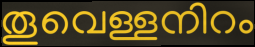
തൂവെള്ളനിറം